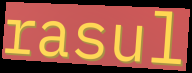
rasul